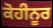
ਕੋਹੀਨੂਰ